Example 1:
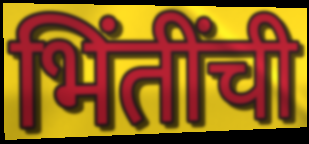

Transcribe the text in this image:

भिंतींची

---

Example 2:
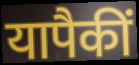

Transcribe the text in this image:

यापैकीं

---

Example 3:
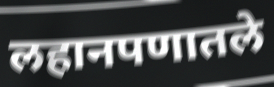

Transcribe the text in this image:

लहानपणातले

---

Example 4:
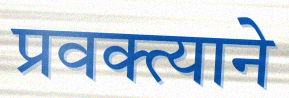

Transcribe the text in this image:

प्रवक्‍त्याने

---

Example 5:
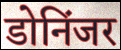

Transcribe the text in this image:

डोनिंजर